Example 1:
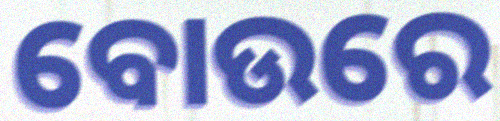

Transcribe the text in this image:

ବୋଉରେ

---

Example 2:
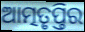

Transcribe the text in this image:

ଆତ୍ମତୃପ୍ତିର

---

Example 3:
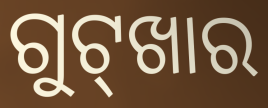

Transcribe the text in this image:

ଗୁଟ୍‌ଖାର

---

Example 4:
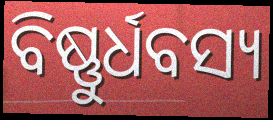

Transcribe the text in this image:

ବିଷ୍ଣୁର୍ଧବସ୍ୟ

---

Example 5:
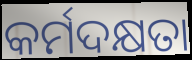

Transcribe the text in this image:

କର୍ମଦକ୍ଷତା